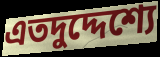
এতদুদ্দেশ্যে